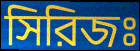
সিরিজঃ